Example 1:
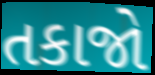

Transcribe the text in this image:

તકાજો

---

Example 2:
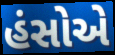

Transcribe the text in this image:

હંસોએ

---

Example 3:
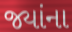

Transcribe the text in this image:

જ્યાંના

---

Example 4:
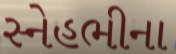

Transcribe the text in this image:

સ્નેહભીના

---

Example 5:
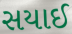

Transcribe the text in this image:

સયાઈ